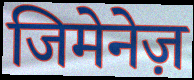
जिमेनेज़